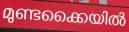
മുണ്ടക്കൈയിൽ